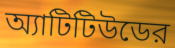
অ্যাটিটিউডের